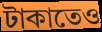
টাকাতেও